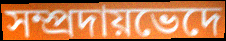
সম্প্রদায়ভেদে